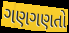
ગણગણતો